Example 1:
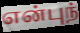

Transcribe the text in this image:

என்புந்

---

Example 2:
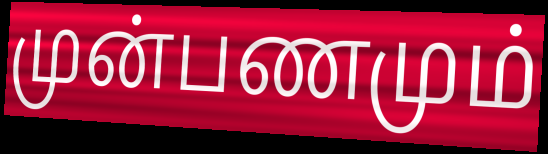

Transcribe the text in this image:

முன்பணமும்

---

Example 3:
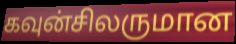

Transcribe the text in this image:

கவுன்சிலருமான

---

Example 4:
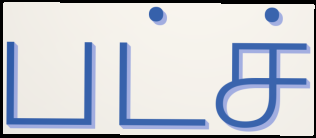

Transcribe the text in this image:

பட்ச்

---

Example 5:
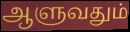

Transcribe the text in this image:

ஆளுவதும்